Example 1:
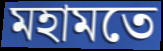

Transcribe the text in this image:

মহামতে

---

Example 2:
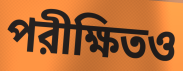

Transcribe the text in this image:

পরীক্ষিতও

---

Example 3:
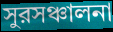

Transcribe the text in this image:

সুরসঞ্চালনা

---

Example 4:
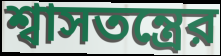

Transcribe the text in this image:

শ্বাসতন্ত্রের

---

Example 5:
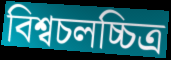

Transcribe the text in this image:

বিশ্বচলচ্চিত্র